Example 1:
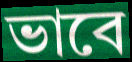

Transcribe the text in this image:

ভাবে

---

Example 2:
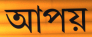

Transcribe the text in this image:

আপয়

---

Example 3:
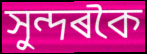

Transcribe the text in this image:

সুন্দৰকৈ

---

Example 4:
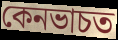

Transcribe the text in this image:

কেনভাচত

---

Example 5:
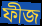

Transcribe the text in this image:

ফীজ